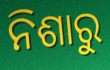
ନିଶାରୁ